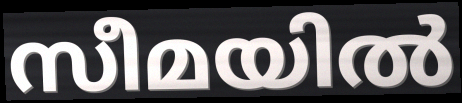
സീമയിൽ